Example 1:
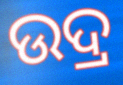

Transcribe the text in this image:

ଉଦ୍ର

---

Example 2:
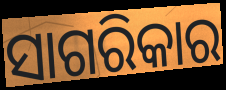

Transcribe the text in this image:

ସାଗରିକାର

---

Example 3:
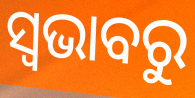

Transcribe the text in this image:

ସ୍ୱଭାବରୁ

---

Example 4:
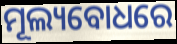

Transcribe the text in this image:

ମୂଲ୍ୟବୋଧରେ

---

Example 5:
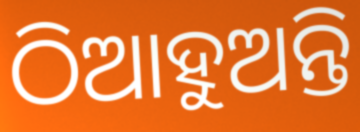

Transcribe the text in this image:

ଠିଆହୁଅନ୍ତି